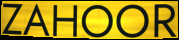
ZAHOOR